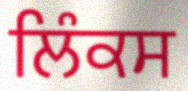
ਲਿੰਕਸ